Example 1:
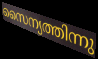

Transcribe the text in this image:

സൈന്യത്തിന്നു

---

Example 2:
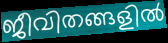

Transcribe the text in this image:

ജീവിതങ്ങളിൽ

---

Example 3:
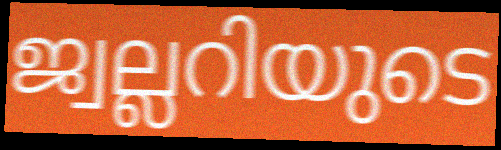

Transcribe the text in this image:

ജ്വല്ലറിയുടെ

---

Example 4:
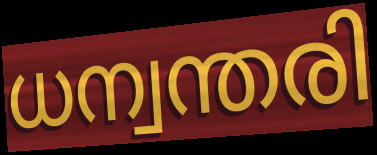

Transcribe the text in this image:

ധന്വന്തരി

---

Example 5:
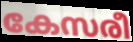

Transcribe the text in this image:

കേസരീ